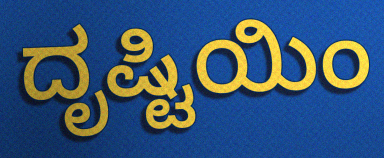
ದೃಷ್ಟಿಯಿಂ